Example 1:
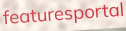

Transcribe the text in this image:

featuresportal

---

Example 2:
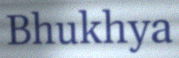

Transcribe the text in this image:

Bhukhya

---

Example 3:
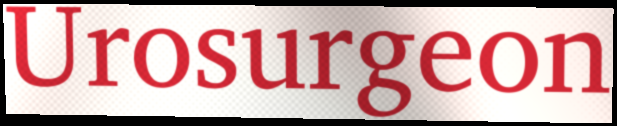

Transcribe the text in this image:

Urosurgeon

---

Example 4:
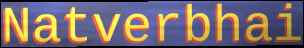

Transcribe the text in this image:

Natverbhai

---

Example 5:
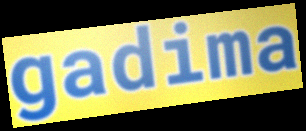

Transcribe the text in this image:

gadima